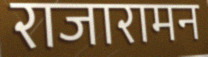
राजारामन